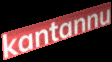
kantannu